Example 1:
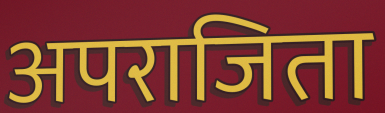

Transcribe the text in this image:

अपराजिता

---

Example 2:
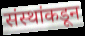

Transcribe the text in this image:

संस्थांकडून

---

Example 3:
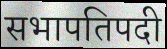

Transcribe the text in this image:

सभापतिपदी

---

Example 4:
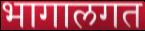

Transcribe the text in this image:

भागालगत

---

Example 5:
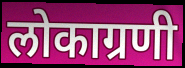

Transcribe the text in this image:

लोकाग्रणी